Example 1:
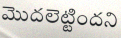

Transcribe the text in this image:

మొదలెట్టిందని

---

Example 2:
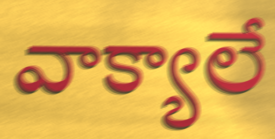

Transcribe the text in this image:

వాక్యాలే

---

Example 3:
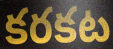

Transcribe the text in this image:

కరకట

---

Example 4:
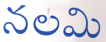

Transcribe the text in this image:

నలమి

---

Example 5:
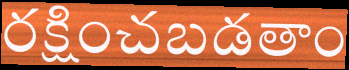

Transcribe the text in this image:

రక్షించబడతాం